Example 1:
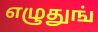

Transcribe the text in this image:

எழுதுங்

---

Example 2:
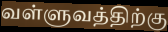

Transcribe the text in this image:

வள்ளுவத்திற்கு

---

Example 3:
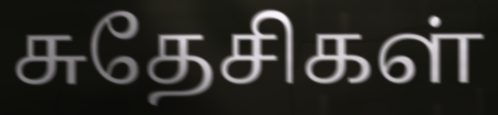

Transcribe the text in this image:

சுதேசிகள்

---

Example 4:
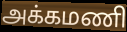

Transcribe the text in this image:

அக்கமணி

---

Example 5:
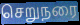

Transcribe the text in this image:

செறுநரை